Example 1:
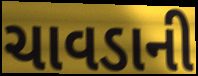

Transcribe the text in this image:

ચાવડાની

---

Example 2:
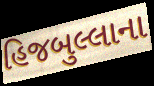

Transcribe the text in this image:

હિજબુલ્લાના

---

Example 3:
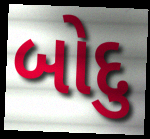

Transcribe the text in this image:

બોદુ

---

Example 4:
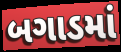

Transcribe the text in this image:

બગાડમાં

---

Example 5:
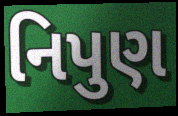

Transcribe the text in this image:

નિપુણ